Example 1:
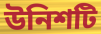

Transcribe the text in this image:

উনিশটি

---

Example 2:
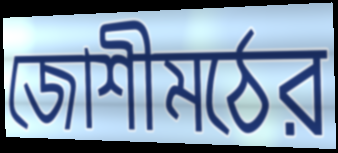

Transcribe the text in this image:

জোশীমঠের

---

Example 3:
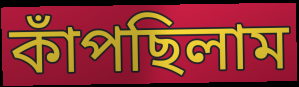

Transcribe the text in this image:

কাঁপছিলাম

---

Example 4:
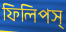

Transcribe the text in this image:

ফিলিপস্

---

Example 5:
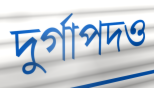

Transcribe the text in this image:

দুর্গাপদও